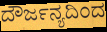
ದೌರ್ಜನ್ಯದಿಂದ